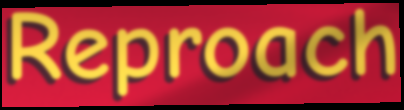
Reproach